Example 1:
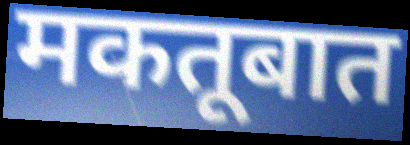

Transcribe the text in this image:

मकतूबात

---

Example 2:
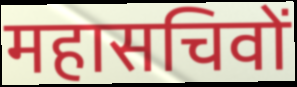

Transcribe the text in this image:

महासचिवों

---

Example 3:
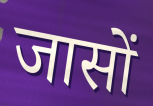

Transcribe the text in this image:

जासों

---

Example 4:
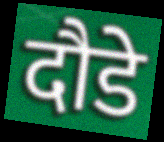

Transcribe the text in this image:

दौडे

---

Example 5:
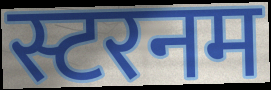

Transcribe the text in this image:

स्टरनम